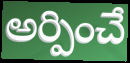
అర్పించే